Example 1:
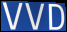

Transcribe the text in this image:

VVD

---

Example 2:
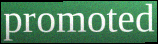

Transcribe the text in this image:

promoted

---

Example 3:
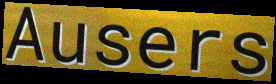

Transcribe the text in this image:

Ausers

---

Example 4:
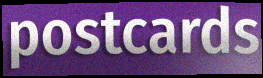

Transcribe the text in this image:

postcards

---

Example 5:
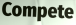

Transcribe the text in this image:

Compete